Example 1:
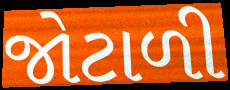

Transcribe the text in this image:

જોટાળી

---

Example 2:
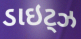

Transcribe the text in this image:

ડાઇટ્ઝ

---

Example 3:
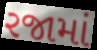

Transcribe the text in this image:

રજામાં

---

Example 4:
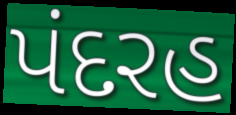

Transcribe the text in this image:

પંદરહ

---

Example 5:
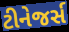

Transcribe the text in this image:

ટીનેજર્સ